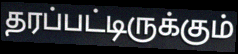
தரப்பட்டிருக்கும்